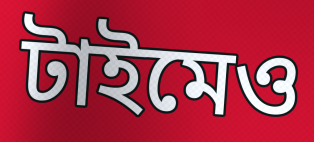
টাইমেও